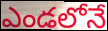
ఎండలోనే